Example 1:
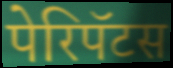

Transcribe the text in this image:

पेरिपॅटस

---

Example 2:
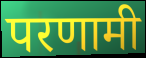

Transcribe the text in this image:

परणामी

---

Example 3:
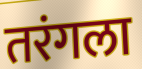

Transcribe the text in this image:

तरंगला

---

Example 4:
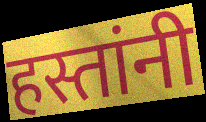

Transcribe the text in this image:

हस्तांनी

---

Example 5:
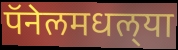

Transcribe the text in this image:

पॅनेलमधल्या